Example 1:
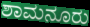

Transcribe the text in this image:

ಶಾಮನೂರು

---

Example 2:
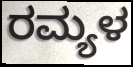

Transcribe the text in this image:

ರಮ್ಯಳ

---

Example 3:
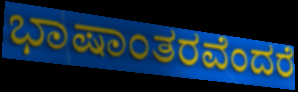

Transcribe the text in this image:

ಭಾಷಾಂತರವೆಂದರೆ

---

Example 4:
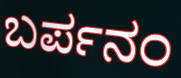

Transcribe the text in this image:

ಬರ್ಪನಂ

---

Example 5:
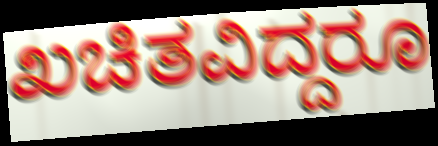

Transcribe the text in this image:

ಖಚಿತವಿದ್ದರೂ